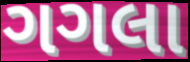
ગગલા